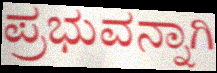
ಪ್ರಭುವನ್ನಾಗಿ